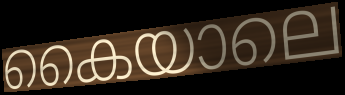
കൈയാലെ